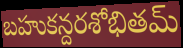
బహుకన్దరశోభితమ్